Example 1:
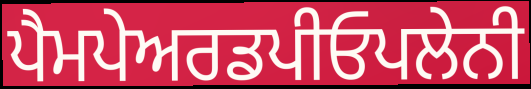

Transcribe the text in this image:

ਪੈਮਪੇਅਰਡਪੀਓਪਲੇਨੀ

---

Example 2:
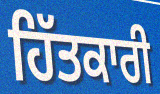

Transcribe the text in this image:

ਹਿੱਤਕਾਰੀ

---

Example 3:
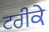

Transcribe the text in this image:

ਟਰੀਕੇ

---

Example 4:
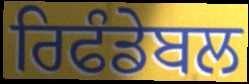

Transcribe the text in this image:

ਰਿਫੰਡੇਬਲ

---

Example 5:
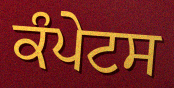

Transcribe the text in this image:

ਕੰਪੇਟਸ